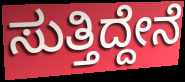
ಸುತ್ತಿದ್ದೇನೆ